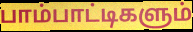
பாம்பாட்டிகளும்